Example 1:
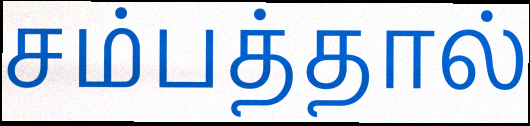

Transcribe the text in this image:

சம்பத்தால்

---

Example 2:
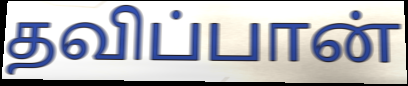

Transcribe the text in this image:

தவிப்பான்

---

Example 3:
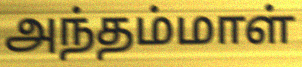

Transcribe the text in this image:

அந்தம்மாள்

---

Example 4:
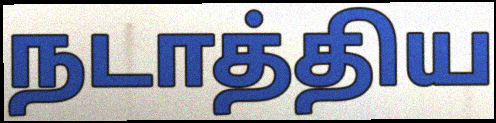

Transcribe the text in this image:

நடாத்திய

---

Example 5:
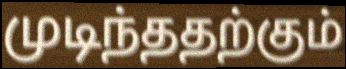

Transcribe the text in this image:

முடிந்ததற்கும்